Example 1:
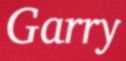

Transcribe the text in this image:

Garry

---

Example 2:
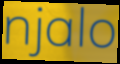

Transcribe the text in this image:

njalo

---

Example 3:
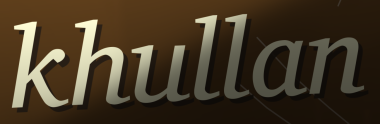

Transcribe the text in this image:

khullan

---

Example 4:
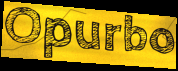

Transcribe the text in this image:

Opurbo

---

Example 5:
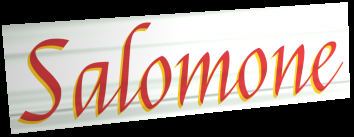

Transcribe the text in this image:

Salomone